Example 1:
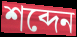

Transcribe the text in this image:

শব্দেন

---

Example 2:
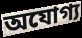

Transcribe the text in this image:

অযোগ্য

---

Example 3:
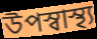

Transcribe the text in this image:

উপস্বাস্থ্য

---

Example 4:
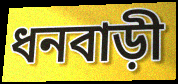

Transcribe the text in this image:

ধনবাড়ী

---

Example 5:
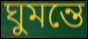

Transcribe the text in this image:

ঘুমন্তে